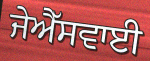
ਜੇਐੱਸਵਾਈ